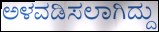
ಅಳವಡಿಸಲಾಗಿದ್ದು